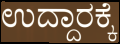
ಉದ್ದಾರಕ್ಕೆ